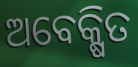
ଅବେକ୍ଷିତ